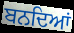
ਬਨਦਿਆਂ